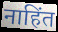
नाहिंत